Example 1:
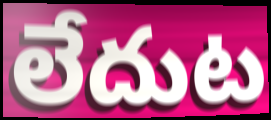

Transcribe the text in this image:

లేదుట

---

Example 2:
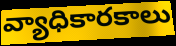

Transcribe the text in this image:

వ్యాధికారకాలు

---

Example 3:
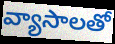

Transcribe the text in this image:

వ్యాసాలతో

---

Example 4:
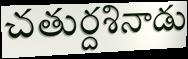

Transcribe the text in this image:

చతుర్దశినాడు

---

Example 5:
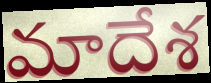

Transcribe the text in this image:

మాదేశ